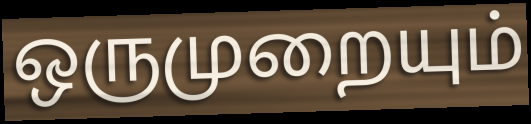
ஒருமுறையும்